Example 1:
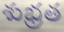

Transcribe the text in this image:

శుభ్రత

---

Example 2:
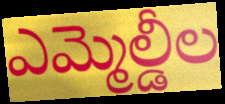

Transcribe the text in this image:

ఎమ్మెల్డీల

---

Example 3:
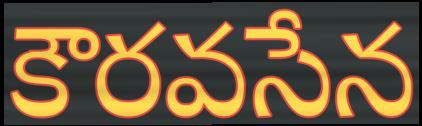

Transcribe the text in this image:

కౌరవసేన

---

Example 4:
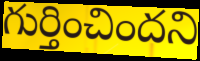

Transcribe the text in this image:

గుర్తించిందని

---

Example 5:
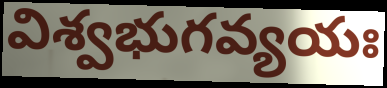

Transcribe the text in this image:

విశ్వభుగవ్యయః